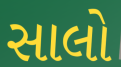
સાલો